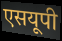
एसयूपी